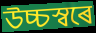
উচ্চস্বৰে